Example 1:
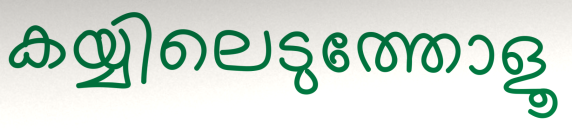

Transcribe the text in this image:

കയ്യിലെടുത്തോളൂ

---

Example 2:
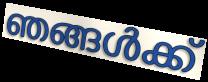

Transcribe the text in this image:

ഞങ്ങൾക്ക്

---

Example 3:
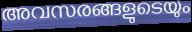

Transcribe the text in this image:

അവസരങ്ങളുടെയും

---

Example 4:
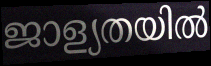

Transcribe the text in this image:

ജാള്യതയിൽ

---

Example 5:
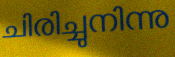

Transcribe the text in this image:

ചിരിച്ചുനിന്നു